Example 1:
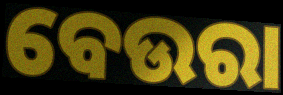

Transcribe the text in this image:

ବେଉରା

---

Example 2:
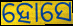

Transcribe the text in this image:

ହୋସେ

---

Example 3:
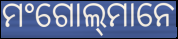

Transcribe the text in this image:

ମଂଗୋଲ୍‍ମାନେ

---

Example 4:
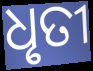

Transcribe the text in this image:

ଧୃତୀ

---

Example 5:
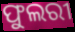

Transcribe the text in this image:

ଫୁଲରୀ